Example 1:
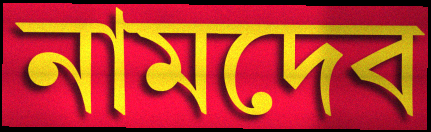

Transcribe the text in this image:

নামদেব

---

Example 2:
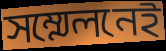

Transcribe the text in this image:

সম্মেলনেই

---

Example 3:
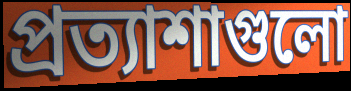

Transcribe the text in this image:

প্রত্যাশাগুলো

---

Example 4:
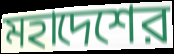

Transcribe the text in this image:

মহাদেশের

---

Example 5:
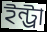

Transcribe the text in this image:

ইন্ট্রা